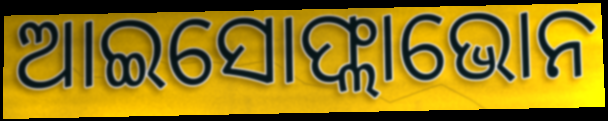
ଆଇସୋଫ୍ଲାଭୋନ